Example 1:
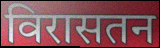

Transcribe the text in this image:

विरासतन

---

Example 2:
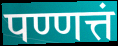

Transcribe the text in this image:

पण्णत्तं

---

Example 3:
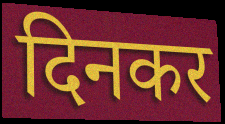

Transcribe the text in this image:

दिनकर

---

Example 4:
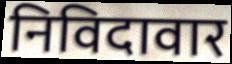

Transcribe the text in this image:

निविदावार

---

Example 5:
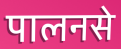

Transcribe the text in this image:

पालनसे